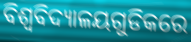
ବିଶ୍ଵବିଦ୍ୟାଳୟଗୁଡିକରେ